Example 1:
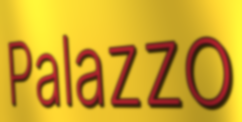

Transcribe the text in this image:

Palazzo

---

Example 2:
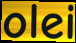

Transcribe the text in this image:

olei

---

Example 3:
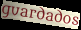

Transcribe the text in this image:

guardados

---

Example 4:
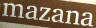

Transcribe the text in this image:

mazana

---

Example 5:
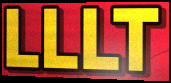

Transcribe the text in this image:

LLLT